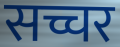
सच्चर